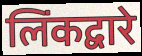
लिंकद्वारे